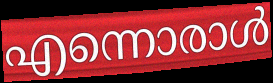
എന്നൊരാൾ